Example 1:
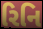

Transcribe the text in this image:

રિનિ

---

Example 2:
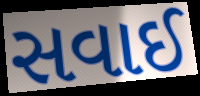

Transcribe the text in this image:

સવાઈ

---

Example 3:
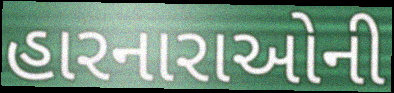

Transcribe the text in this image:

હારનારાઓની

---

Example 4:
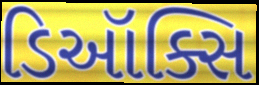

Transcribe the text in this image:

ડિઑક્સિ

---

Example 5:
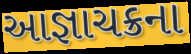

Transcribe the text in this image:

આજ્ઞાચક્રના